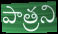
పాత్రని